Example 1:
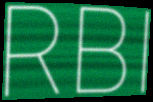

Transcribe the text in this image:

RBl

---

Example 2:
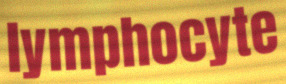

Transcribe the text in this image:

lymphocyte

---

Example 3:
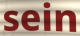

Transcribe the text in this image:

sein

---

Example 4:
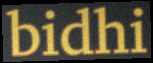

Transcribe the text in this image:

bidhi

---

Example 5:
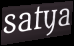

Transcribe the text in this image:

satya